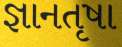
જ્ઞાનતૃષા